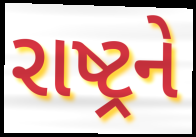
રાષ્ટ્રને